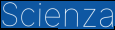
Scienza